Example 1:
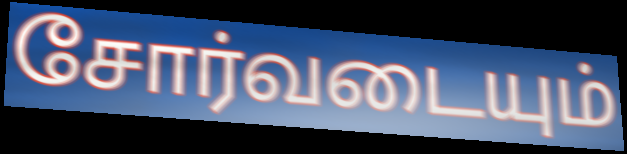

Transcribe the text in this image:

சோர்வடையும்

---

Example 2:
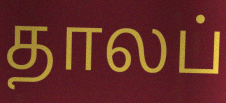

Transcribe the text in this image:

தாலப்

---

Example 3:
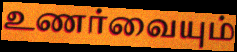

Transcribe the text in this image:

உணர்வையும்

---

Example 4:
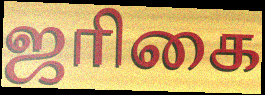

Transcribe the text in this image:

ஜரிகை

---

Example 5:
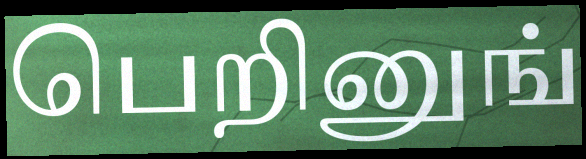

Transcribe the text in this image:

பெறினுங்